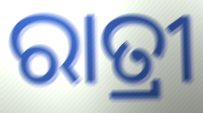
ରାତ୍ରୀ